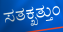
ಸತಕ್ಖತ್ತುಂ